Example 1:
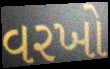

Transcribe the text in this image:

વરખો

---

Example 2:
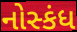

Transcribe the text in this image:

નોસ્કંધ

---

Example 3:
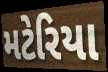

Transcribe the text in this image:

મટેરિયા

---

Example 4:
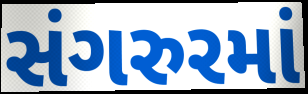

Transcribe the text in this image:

સંગરુરમાં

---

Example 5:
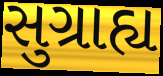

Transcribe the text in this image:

સુગ્રાહ્ય